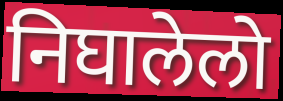
निघालेलो